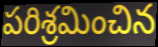
పరిశ్రమించిన